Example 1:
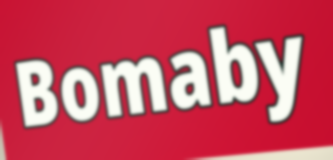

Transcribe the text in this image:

Bomaby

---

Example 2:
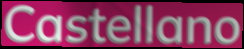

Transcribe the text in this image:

Castellano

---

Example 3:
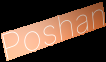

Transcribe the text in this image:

Poshan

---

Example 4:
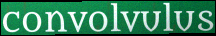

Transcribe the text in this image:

convolvulus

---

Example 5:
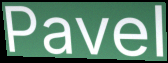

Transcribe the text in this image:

Pavel